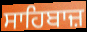
ਸਾਹਿਬਾਜ਼